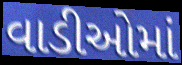
વાડીઓમાં